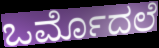
ಒರ್ಮೊದಲೆ